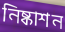
নিষ্কাশন